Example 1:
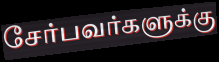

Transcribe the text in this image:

சேர்பவர்களுக்கு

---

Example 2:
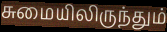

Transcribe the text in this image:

சுமையிலிருந்தும்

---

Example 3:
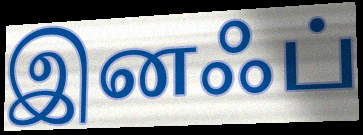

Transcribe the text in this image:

இனஃப்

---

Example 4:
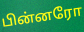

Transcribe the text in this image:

பின்னரோ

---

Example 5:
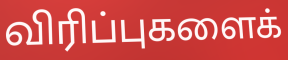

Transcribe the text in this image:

விரிப்புகளைக்